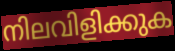
നിലവിളിക്കുക